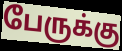
பேருக்கு